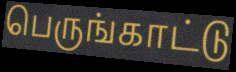
பெருங்காட்டு